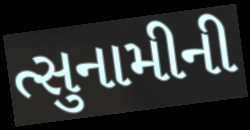
ત્સુનામીની